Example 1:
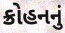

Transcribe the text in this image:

ક્રોહનનું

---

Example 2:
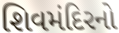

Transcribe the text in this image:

શિવમંદિરનો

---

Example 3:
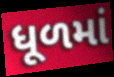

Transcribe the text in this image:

ધૂળમાં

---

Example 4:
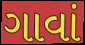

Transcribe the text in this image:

ગાવાં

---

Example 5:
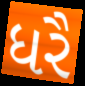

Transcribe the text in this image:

ધરૈ